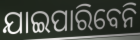
ଯାଇପାରିବେନି